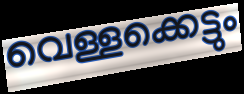
വെള്ളക്കെട്ടും